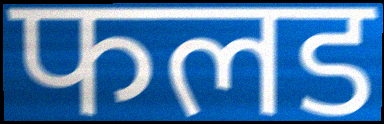
फलड